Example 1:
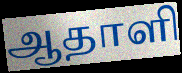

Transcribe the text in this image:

ஆதாளி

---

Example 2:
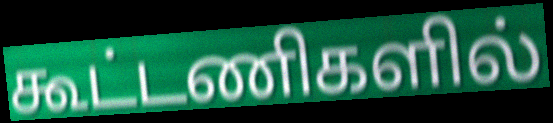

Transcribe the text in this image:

கூட்டணிகளில்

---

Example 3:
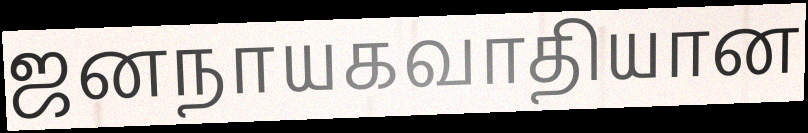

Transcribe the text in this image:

ஜனநாயகவாதியான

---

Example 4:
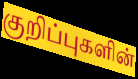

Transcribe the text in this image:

குறிப்புகளின்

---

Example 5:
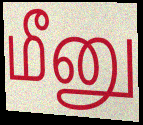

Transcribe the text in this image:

மீனு